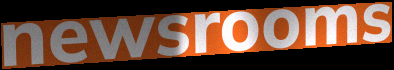
newsrooms